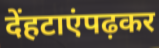
देंहटाएंपढ़कर